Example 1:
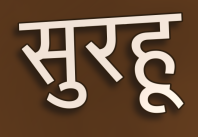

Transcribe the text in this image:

सुरहू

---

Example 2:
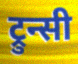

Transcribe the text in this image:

ट्रुन्सी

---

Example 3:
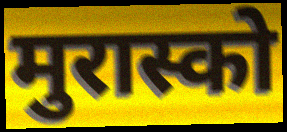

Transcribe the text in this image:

मुरास्को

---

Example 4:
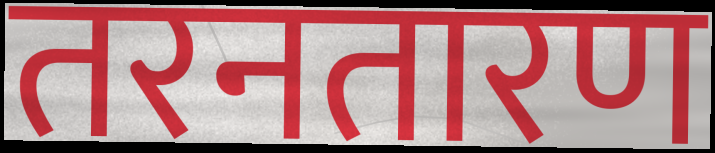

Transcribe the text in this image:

तरनतारण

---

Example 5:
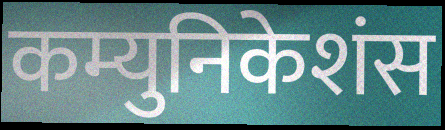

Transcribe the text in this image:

कम्‍युनिकेशंस